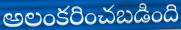
అలంకరించబడింది